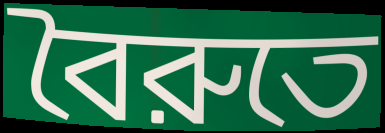
বৈরুতে